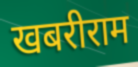
खबरीराम